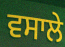
ਵਸਾਲੇ